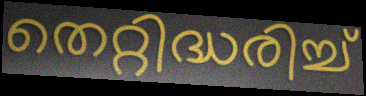
തെറ്റിദ്ധരിച്ച്